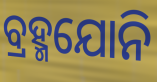
ବ୍ରହ୍ମଯୋନି